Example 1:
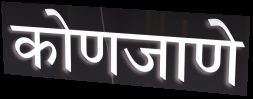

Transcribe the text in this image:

कोणजाणे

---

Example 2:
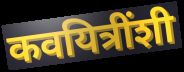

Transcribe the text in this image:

कवयित्रींशी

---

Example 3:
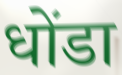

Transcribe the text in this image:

धोंडा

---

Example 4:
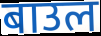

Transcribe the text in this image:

बाउल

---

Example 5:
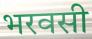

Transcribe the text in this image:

भरवसी